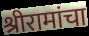
श्रीरामांचा